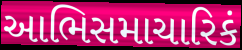
આભિસમાચારિકં